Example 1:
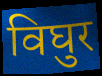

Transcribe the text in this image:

विघुर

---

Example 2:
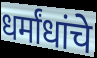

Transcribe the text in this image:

धर्मांधांचे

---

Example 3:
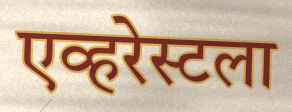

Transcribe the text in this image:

एव्हरेस्टला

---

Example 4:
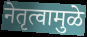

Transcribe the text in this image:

नेतृत्वामुळे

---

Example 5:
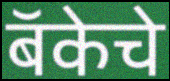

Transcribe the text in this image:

बॅकेचे